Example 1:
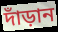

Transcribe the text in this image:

দাঁড়ান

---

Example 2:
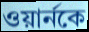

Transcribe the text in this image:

ওয়ার্নকে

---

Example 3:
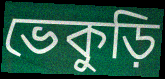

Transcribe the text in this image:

ভেকুড়ি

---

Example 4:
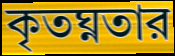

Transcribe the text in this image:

কৃতঘ্নতার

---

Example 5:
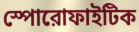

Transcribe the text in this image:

স্পোরোফাইটিক